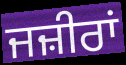
ਜਜ਼ੀਰਾਂ